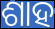
ଶାହ